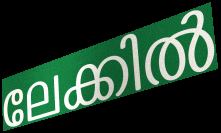
ലേക്കിൽ